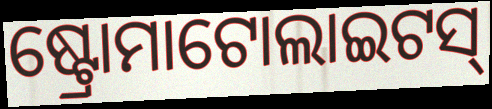
ଷ୍ଟ୍ରୋମାଟୋଲାଇଟସ୍